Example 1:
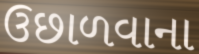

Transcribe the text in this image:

ઉછાળવાના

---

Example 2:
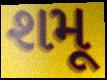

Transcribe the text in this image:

શમૂ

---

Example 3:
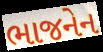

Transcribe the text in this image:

ભાજનેન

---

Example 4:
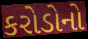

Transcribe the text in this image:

કરોડોનો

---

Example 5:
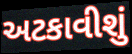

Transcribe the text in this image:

અટકાવીશું